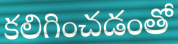
కలిగించడంతో